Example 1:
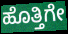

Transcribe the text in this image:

ಹೊತ್ತಿಗೇ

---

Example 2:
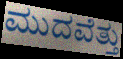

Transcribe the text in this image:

ಮುದವೆತ್ತು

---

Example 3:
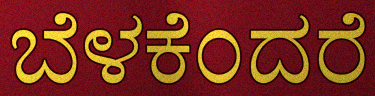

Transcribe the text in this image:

ಬೆಳಕೆಂದರೆ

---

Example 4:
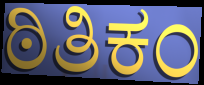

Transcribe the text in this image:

ಠಿತಿಕಂ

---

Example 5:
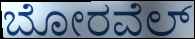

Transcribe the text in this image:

ಬೋರವೆಲ್